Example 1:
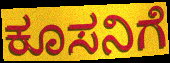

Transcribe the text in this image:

ಕೂಸನಿಗೆ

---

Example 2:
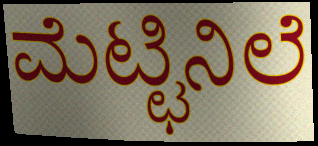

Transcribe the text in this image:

ಮೆಟ್ಟಿನಿಲೆ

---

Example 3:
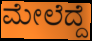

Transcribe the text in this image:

ಮೇಲೆದ್ದೆ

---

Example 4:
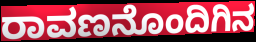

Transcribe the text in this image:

ರಾವಣನೊಂದಿಗಿನ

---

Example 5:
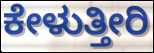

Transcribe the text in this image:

ಕೇಳುತ್ತೀರಿ